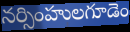
నర్సింహులగూడెం